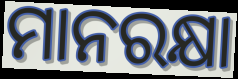
ମାନରକ୍ଷା